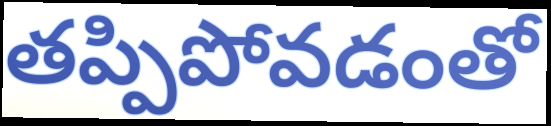
తప్పిపోవడంతో